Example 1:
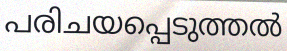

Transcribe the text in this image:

പരിചയപ്പെടുത്തൽ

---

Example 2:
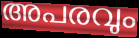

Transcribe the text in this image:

അപരവും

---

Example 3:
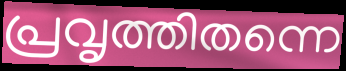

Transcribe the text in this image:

പ്രവൃത്തിതന്നെ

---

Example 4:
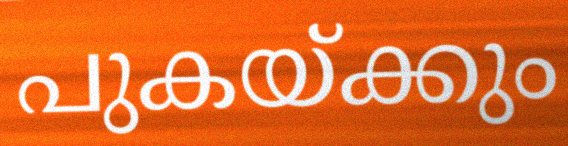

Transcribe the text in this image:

പുകയ്ക്കും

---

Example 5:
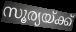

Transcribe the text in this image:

സൂര്യയ്ക്ക്